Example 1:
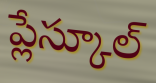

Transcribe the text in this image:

ప్లేస్కూల్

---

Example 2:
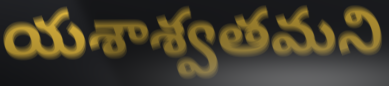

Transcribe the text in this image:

యశాశ్వతమని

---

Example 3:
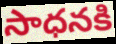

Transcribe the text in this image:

సాధనకి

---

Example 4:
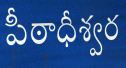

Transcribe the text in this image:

పీఠాధీశ్వర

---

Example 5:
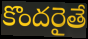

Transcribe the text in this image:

కొందరైతే